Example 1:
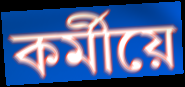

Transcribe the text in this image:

কৰ্মীয়ে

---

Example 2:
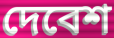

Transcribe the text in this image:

দেবেশ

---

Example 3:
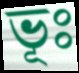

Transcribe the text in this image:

ভূঃ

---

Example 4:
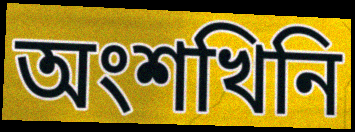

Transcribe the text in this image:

অংশখিনি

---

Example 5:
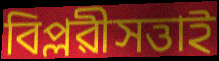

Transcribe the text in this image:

বিপ্লৱীসত্তাই